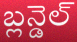
బ్లన్డెల్